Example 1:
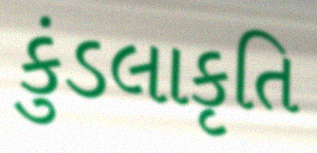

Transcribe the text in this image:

કુંડલાકૃતિ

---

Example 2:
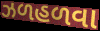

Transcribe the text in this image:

ઝળહળવા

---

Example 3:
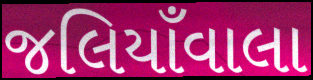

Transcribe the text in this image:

જલિયાઁવાલા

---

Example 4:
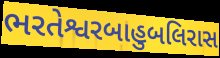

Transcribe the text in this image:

ભરતેશ્વરબાહુબલિરાસ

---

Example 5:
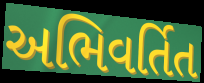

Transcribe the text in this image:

અભિવર્તિત